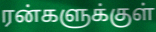
ரன்களுக்குள்